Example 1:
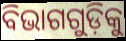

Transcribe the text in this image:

ବିଭାଗଗୁଡ଼ିକୁ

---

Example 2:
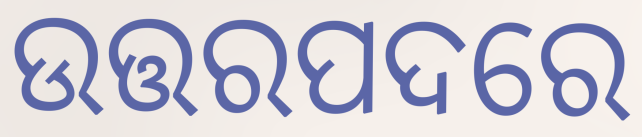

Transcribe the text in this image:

ଉତ୍ତରପଦରେ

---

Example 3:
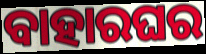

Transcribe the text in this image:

ବାହାରଘର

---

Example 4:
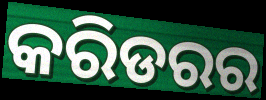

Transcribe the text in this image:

କରିଡରର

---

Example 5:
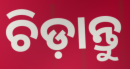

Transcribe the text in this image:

ଚିଡ଼ାନ୍ତୁ